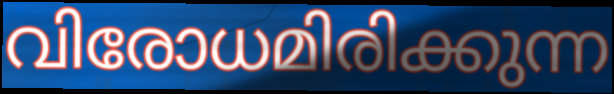
വിരോധമിരിക്കുന്ന